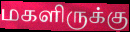
மகளிருக்கு